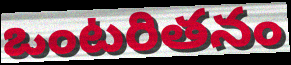
ఒంటరితనం